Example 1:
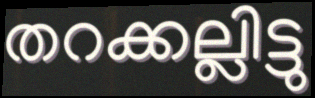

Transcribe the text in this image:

തറക്കല്ലിട്ടു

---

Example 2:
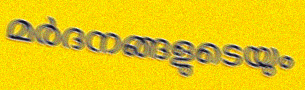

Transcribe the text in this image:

മർദനങ്ങളുടെയും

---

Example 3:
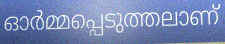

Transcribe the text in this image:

ഓർമ്മപ്പെടുത്തലാണ്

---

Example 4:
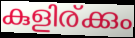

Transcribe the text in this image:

കുളിര്ക്കും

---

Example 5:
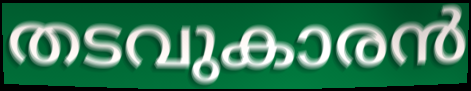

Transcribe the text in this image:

തടവുകാരൻ